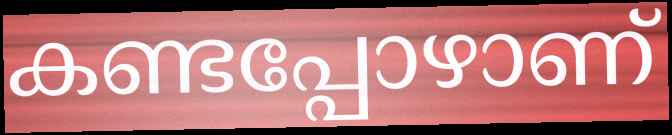
കണ്ടപ്പോഴാണ്